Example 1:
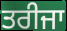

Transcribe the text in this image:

ਤਰੀਜਾ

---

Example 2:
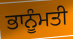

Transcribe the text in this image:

ਭਾਨੂੰਮਤੀ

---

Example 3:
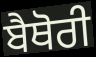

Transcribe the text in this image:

ਬੈਥੋਰੀ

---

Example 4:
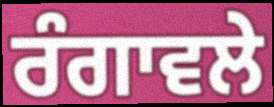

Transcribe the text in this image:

ਰੰਗਾਵਲੇ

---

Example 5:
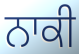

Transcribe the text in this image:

ਨਾਕੀ